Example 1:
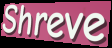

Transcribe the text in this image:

Shreve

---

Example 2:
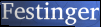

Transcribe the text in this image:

Festinger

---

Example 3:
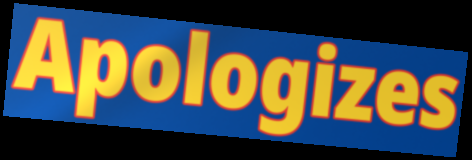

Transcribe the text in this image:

Apologizes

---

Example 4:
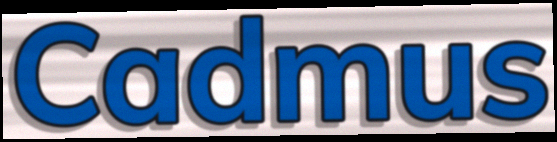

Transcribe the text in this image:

Cadmus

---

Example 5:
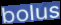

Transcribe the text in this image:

bolus